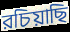
রচিয়াছি